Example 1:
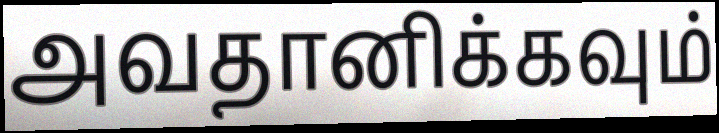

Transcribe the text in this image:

அவதானிக்கவும்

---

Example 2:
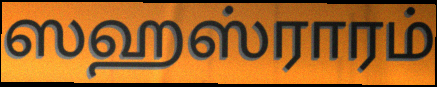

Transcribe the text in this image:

ஸஹஸ்ராரம்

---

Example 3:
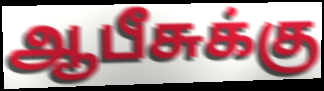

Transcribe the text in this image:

ஆபீசுக்கு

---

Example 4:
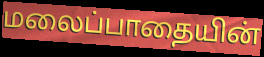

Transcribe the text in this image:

மலைப்பாதையின்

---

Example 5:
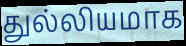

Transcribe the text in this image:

துல்லியமாக